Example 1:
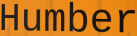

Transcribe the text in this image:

Humber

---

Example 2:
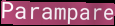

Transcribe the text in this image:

Parampare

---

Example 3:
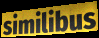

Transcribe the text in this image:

similibus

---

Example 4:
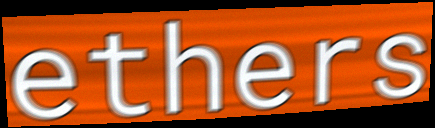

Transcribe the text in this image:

ethers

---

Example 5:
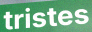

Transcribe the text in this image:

tristes